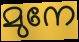
മുനേ